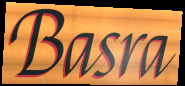
Basra